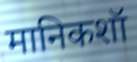
मानिकशॉ